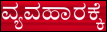
ವ್ಯವಹಾರಕ್ಕೆ